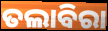
ତଲାବିରା